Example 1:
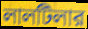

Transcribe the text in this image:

লালটিলার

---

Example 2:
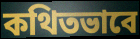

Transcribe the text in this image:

কথিতভাবে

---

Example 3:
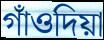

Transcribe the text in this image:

গাঁওদিয়া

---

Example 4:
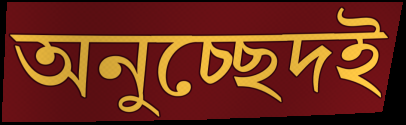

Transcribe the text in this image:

অনুচ্ছেদই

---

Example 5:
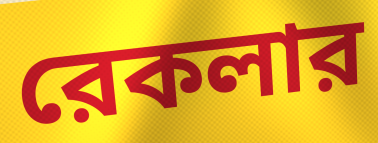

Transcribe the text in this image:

রেকলার